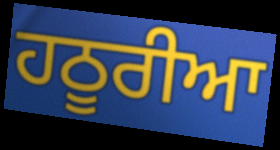
ਹਠੂਰੀਆ